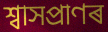
শ্বাসপ্ৰাণৰ